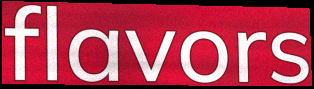
flavors